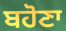
ਬਹੋਣਾ